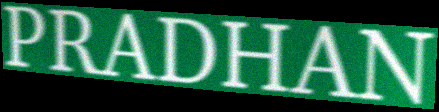
PRADHAN